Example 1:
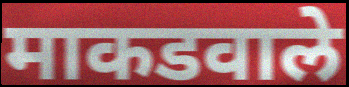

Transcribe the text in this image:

माकडवाले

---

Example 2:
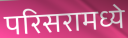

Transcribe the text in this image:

परिसरामध्ये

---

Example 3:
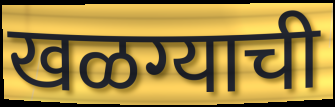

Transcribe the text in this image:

खळग्याची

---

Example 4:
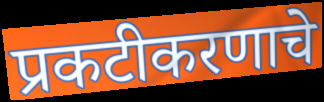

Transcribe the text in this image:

प्रकटीकरणाचे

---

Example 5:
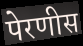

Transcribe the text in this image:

पेरणीस